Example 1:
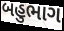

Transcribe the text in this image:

બહુભાગ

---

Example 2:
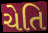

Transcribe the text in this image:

ચેતિ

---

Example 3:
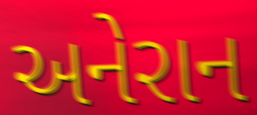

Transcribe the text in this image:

અનેરાન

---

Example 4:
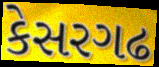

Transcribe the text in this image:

કેસરગઢ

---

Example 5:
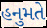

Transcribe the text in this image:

હનુમતે